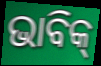
ଭାବିକ୍